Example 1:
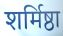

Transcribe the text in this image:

शर्मिष्ठा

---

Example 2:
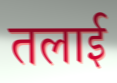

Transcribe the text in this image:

तलाई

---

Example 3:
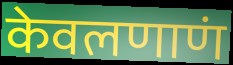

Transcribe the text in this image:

केवलणाणं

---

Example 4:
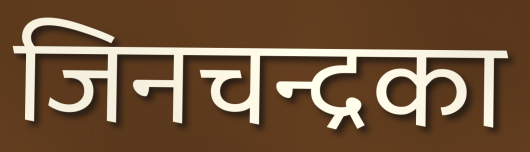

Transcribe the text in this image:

जिनचन्द्रका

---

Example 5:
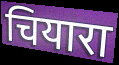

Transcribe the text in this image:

चियारा